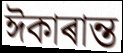
ঈকাৰান্ত